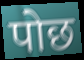
पोछ